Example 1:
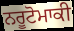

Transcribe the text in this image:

ਨਰੂਟੋਮਾਕੀ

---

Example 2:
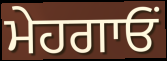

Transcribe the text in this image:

ਮੇਹਗਾਓਂ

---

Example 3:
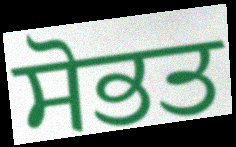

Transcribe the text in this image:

ਸੋਭਤ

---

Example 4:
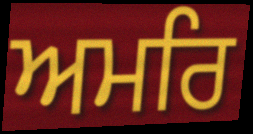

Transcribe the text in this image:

ਅਮਰਿ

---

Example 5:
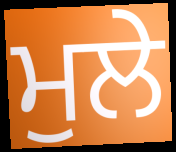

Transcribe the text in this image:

ਮੁਲੇ